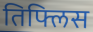
तिफ्लिस